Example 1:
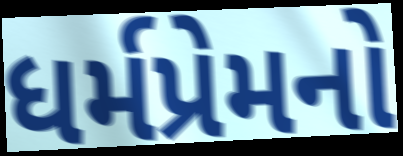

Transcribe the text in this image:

ધર્મપ્રેમનો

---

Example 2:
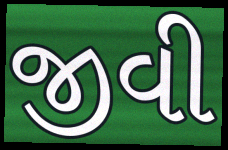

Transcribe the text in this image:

જીવી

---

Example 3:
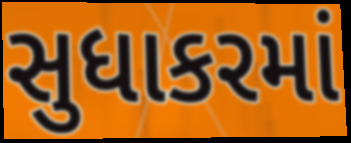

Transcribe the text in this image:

સુધાકરમાં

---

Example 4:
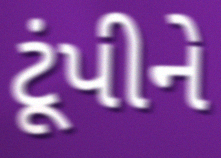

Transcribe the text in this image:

ટૂંપીને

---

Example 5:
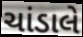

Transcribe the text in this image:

ચાંડાલે